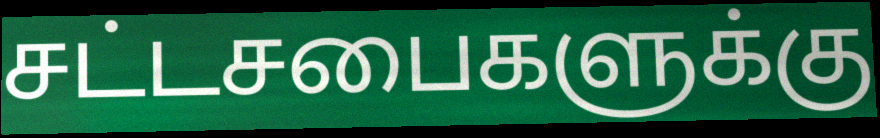
சட்டசபைகளுக்கு